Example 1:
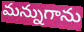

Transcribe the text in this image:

మన్నుగాను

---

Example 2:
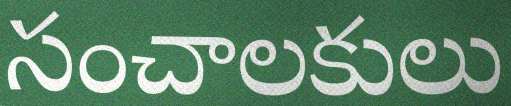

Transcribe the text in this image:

సంచాలకులు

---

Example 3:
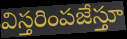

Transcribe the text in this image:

విస్తరింపజేస్తూ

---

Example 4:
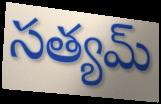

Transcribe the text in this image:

సత్యమ్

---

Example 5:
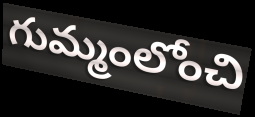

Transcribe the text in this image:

గుమ్మంలోంచి